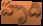
హృది